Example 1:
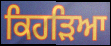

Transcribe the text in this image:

ਕਿਹੜਿਆ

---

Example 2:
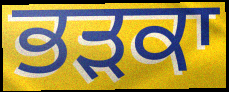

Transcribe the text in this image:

ਭੜਕਾ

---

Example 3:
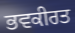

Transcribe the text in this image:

ਭਵਕੀਰਤ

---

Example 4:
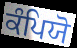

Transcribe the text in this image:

ਕੰਪਿਯੋ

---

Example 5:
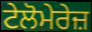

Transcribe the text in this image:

ਟੇਲੋਮੇਰੇਜ਼